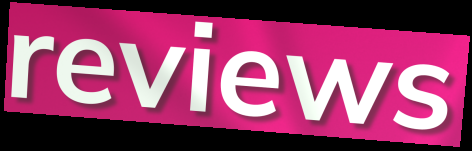
reviews